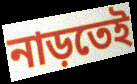
নাড়তেই